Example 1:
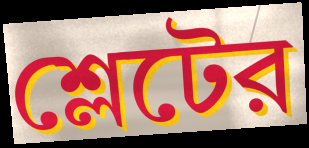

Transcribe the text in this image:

শ্লেটের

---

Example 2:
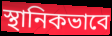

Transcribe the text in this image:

স্থানিকভাবে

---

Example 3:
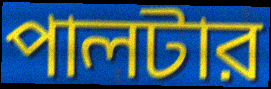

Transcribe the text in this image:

পালটার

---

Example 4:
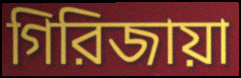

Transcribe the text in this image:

গিরিজায়া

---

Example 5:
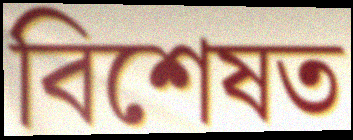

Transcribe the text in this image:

বিশেষত